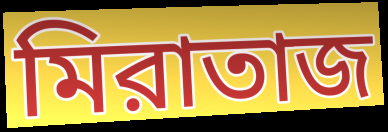
মিরাতাজ